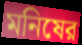
মনিষের